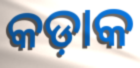
କଡ଼ାକ